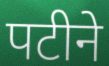
पटीने